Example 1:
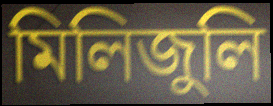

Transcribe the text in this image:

মিলিজুলি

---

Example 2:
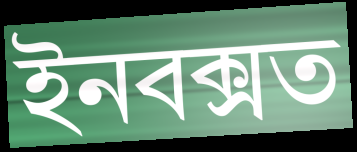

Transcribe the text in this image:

ইনবক্সত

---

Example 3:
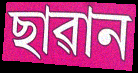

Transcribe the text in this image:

ছাৱান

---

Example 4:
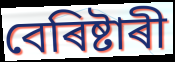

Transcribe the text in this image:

বেৰিষ্টাৰী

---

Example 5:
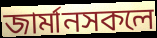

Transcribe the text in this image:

জাৰ্মানসকলে